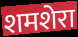
शमशेरा